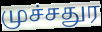
முச்சதுர